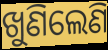
ଖୁଣିଲେଣି